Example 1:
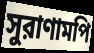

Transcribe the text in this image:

সুরাণামপি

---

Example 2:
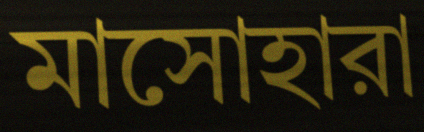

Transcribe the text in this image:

মাসোহারা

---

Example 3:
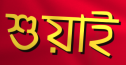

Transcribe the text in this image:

শুয়াই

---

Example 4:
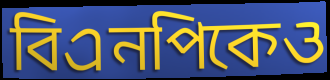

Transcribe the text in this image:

বিএনপিকেও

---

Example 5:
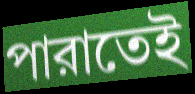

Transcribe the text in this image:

পারাতেই